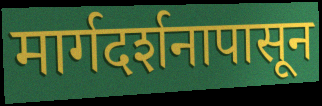
मार्गदर्शनापासून